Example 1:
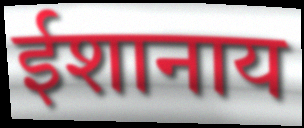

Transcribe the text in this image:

ईशानाय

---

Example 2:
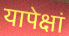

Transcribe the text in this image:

यापेक्षां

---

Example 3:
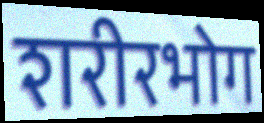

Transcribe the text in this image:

शरीरभोग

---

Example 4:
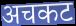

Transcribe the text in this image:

अचकट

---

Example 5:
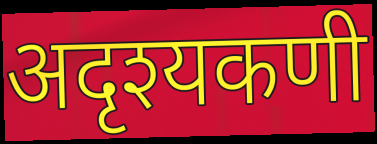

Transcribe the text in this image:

अदृश्यकणी